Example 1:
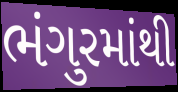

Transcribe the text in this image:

ભંગુરમાંથી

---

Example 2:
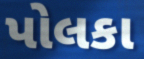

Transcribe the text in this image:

પોલકા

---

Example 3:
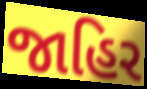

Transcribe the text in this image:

જાહિર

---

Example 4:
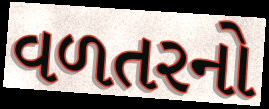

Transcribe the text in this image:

વળતરનો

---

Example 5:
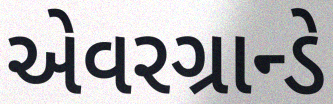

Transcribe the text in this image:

એવરગ્રાન્ડે